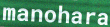
manohara